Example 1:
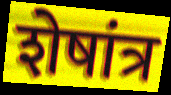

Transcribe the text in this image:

शेषांत्र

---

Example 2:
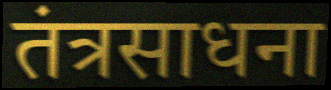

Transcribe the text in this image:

तंत्रसाधना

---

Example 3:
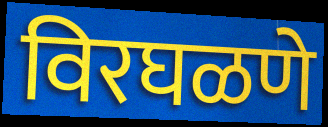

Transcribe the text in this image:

विरघळणे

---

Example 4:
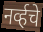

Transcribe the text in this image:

नर्व्हचे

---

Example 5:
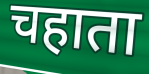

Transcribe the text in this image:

चहाता